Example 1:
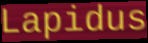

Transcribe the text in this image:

Lapidus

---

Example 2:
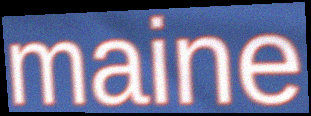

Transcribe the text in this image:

maine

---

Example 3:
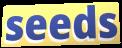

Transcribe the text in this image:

seeds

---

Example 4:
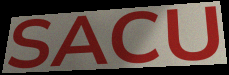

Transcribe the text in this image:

SACU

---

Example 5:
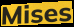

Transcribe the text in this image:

Mises